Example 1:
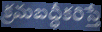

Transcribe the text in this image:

క్రమబద్ధీకరిస్తే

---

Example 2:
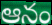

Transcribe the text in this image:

ఆనం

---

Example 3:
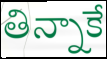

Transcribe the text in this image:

తిన్నాకే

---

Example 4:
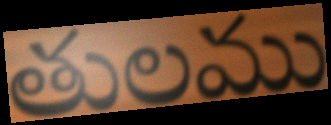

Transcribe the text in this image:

తులము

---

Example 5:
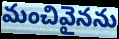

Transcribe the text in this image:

మంచివైనను